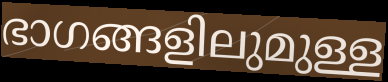
ഭാഗങ്ങളിലുമുള്ള